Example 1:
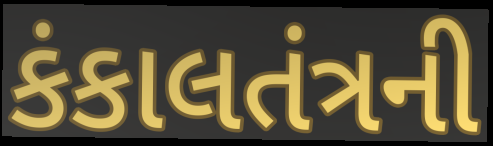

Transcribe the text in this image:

કંકાલતંત્રની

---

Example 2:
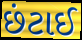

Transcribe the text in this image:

છંટાઈ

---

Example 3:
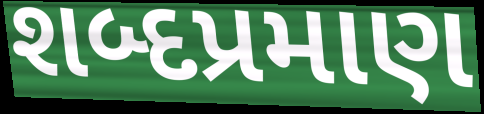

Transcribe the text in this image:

શબ્દપ્રમાણ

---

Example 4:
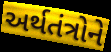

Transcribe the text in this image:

અર્થતંત્રોને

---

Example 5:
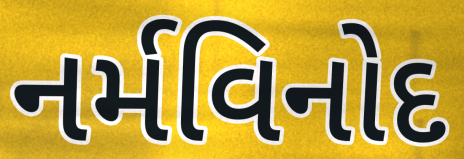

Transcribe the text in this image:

નર્મવિનોદ